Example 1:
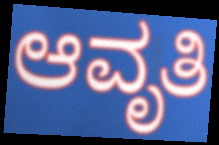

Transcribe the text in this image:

ಆವೃತಿ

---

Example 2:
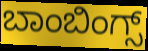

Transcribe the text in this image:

ಬಾಂಬಿಂಗ್ಸ್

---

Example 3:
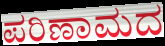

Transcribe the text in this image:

ಪರಿಣಾಮದ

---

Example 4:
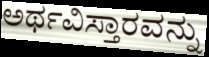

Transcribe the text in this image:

ಅರ್ಥವಿಸ್ತಾರವನ್ನು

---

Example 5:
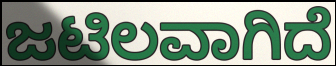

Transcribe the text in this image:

ಜಟಿಲವಾಗಿದೆ